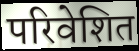
परिवेशित